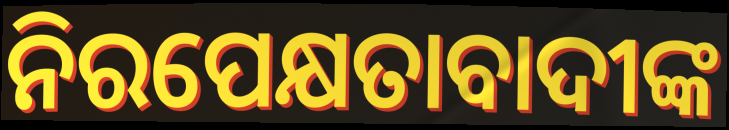
ନିରପେକ୍ଷତାବାଦୀଙ୍କ